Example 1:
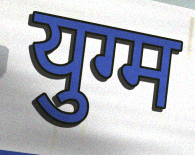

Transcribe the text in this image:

युग्म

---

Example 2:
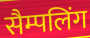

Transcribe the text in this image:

सैम्पलिंग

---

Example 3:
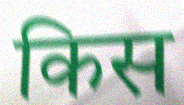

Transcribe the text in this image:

किस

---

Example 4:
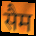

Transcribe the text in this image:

सैम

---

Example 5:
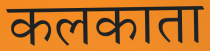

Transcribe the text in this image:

कलकाता